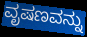
ವೃಷಣವನ್ನು